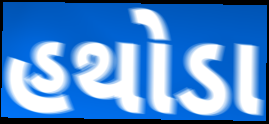
હથોડા